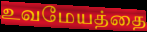
உவமேயத்தை